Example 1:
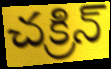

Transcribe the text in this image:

చక్రిన్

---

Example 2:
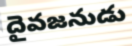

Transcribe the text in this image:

దైవజనుడు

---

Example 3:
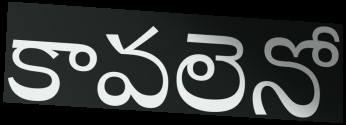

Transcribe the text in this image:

కావలెనో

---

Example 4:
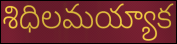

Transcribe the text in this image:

శిధిలమయ్యాక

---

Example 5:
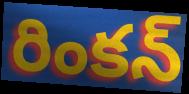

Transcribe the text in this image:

రింకన్